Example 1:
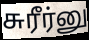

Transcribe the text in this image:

சுரீர்னு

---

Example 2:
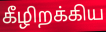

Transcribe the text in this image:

கீழிறக்கிய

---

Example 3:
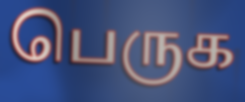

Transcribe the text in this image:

பெருக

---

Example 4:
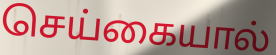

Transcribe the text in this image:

செய்கையால்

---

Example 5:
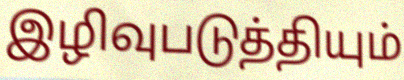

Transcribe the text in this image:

இழிவுபடுத்தியும்